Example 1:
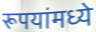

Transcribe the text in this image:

रूपयांमध्ये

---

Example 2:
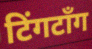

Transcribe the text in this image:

टिंगटॉंग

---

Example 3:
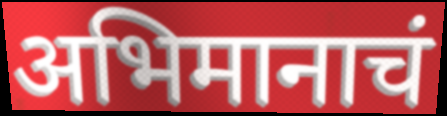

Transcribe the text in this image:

अभिमानाचं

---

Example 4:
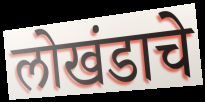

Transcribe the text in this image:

लोखंडाचे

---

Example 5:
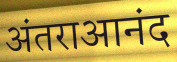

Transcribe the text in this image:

अंतराआनंद